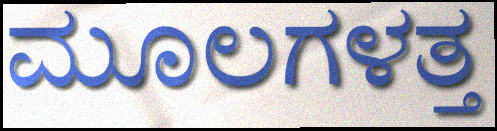
ಮೂಲಗಳತ್ತ